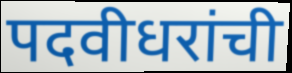
पदवीधरांची